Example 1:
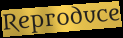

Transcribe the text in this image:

Reproduce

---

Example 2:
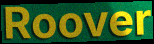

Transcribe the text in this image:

Roover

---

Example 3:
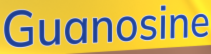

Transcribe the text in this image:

Guanosine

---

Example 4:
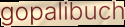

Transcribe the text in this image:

gopalibuch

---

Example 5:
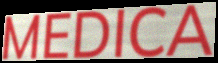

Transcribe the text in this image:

MEDICA